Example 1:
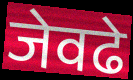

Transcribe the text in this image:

जेवढे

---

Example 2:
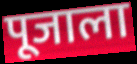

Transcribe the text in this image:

पूजाला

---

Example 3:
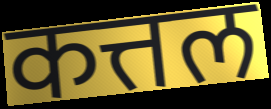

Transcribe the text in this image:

कत्तल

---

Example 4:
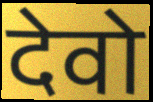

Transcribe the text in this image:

देवो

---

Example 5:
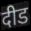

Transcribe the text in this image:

दीड